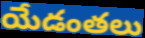
యేడంతలు